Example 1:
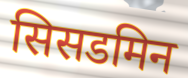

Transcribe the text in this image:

सिसडमिन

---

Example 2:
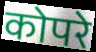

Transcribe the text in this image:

कोपरे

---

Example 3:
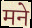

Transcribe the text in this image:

मने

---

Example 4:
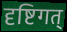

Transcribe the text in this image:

दृष्टिगत्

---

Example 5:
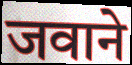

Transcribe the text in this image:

जवाने